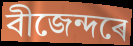
বীজেন্দৰে